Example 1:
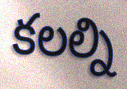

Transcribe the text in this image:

కలల్ని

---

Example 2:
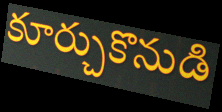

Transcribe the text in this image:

కూర్చుకొనుడి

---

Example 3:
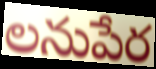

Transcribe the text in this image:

లనుపేర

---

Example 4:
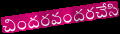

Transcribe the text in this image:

చిందరవందరచేసి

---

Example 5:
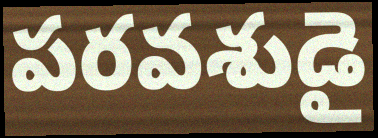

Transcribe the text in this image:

పరవశుడై